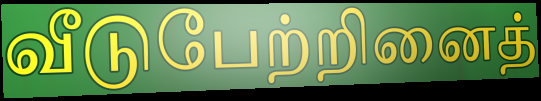
வீடுபேற்றினைத்